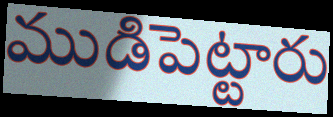
ముడిపెట్టారు